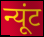
न्यूंट